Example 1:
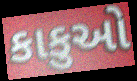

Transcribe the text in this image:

કાકુઓ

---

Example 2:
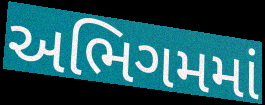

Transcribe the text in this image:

અભિગમમાં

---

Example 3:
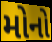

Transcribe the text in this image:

મોનો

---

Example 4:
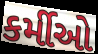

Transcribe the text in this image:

કર્મીઓ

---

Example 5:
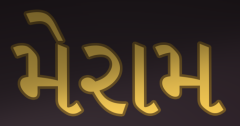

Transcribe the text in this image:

મેરામ